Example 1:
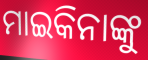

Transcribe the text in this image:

ମାଇକିନାଙ୍କୁ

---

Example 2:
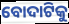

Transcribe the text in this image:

ବୋଦାଟିକୁ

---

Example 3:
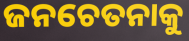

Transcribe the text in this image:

ଜନଚେତନାକୁ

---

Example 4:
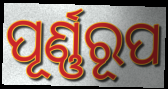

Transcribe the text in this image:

ପୂର୍ଣ୍ଣରୂପ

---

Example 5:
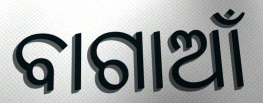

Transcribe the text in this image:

ବାଗାଆଁ